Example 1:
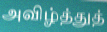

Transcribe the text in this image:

அவிழ்த்துத்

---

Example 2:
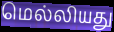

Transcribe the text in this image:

மெல்லியது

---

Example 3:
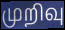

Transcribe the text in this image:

முறிவு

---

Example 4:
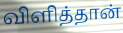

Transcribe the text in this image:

விளித்தான்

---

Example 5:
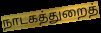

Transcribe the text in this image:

நாடகத்துறைத்